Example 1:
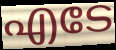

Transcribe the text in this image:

എടേ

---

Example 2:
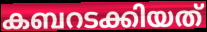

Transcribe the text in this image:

കബറടക്കിയത്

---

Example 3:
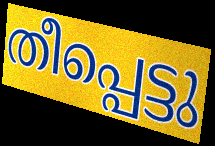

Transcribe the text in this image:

തീപ്പെട്ടു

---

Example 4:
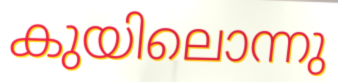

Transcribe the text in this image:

കുയിലൊന്നു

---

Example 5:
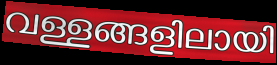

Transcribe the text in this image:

വള്ളങ്ങളിലായി